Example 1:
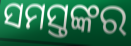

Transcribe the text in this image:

ସମସ୍ତଙ୍କର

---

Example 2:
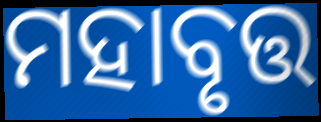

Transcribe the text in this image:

ମହାବୃତ୍ତ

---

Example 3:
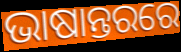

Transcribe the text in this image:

ଭାଷାନ୍ତରରେ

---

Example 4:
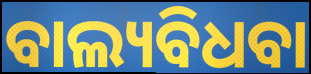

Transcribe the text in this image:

ବାଲ୍ୟବିଧବା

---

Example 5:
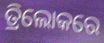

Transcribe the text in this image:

ତ୍ରିଲୋକରେ